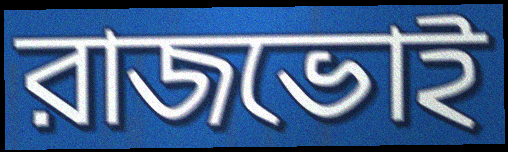
রাজভোই